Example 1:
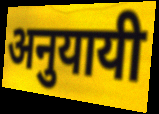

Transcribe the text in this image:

अनुयायी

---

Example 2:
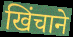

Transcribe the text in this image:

खिंचाने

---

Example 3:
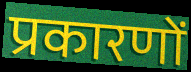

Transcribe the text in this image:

प्रकारणों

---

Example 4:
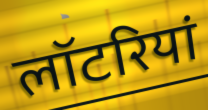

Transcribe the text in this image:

लॉटरियां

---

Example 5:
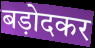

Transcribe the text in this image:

बड़ोदकर